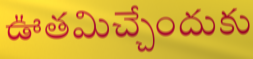
ఊతమిచ్చేందుకు